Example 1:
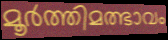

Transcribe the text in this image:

മൂർത്തിമത്ഭാവം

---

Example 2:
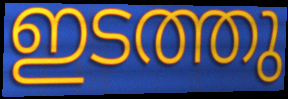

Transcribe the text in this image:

ഇടത്തു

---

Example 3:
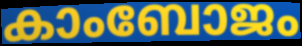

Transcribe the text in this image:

കാംബോജം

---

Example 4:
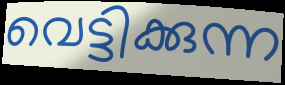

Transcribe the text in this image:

വെട്ടിക്കുന്ന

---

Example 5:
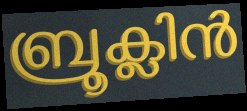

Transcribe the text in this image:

ബ്രൂക്ലിൻ